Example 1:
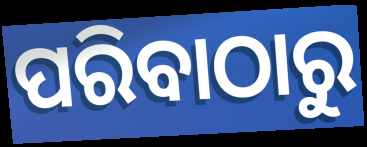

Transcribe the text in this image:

ପରିବାଠାରୁ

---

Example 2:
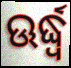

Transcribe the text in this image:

ଊର୍ଦ୍ଧ୍ବ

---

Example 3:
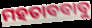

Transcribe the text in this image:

ମହତାବବାବୁ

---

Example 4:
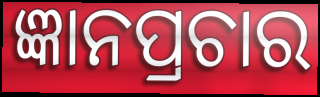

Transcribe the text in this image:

ଜ୍ଞାନପ୍ରଚାର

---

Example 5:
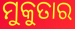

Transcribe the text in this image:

ମୁକୁତାର